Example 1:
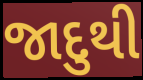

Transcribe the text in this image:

જાદુથી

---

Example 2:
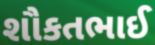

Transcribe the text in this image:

શૌકતભાઈ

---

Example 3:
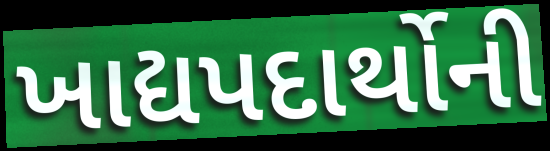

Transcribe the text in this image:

ખાદ્યપદાર્થોની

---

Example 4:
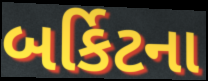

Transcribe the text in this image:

બર્કિટના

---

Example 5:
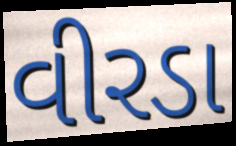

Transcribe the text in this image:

વીરડા